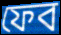
ফেব